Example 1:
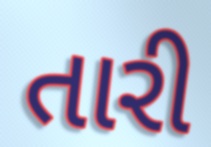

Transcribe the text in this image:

તારી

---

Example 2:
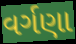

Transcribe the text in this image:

વર્ગણા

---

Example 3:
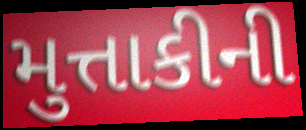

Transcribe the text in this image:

મુત્તાકીની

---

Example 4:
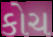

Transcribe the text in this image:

કોચ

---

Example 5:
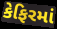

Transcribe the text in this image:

કેફિરમાં